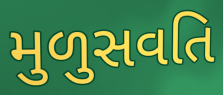
મુળુસવતિ